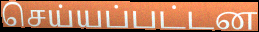
செய்யப்பட்டன